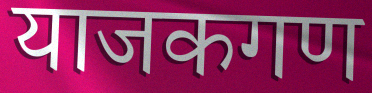
याजकगण